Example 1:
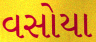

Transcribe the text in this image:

વસોયા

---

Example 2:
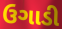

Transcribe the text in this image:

ઉગાડી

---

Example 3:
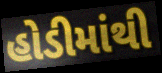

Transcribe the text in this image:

હોડીમાંથી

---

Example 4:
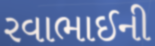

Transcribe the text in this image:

રવાભાઈની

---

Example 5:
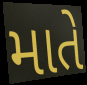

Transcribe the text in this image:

માતે